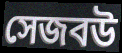
সেজবউ